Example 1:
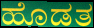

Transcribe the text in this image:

ಹೊಡತ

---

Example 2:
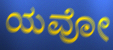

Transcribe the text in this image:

ಯವೋ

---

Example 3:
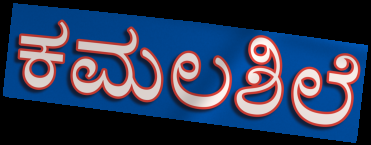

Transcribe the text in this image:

ಕಮಲಶಿಲೆ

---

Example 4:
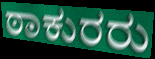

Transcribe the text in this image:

ಠಾಕುರರು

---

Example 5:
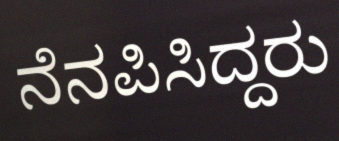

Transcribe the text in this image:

ನೆನಪಿಸಿದ್ದರು